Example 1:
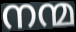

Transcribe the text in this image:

നന്മ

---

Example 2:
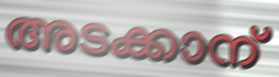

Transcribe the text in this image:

അടക്കാന്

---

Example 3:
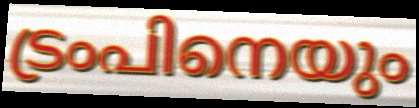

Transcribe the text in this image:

ട്രംപിനെയും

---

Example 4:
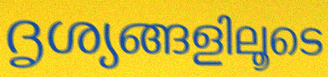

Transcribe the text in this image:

ദൃശ്യങ്ങളിലൂടെ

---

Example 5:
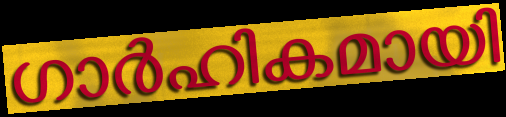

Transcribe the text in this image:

ഗാർഹികമായി